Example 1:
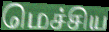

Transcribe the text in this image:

மெச்சிய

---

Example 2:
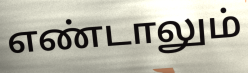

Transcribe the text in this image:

எண்டாலும்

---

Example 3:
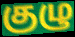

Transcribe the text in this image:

குழு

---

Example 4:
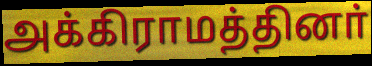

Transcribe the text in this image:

அக்கிராமத்தினர்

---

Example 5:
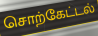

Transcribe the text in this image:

சொற்கேட்டல்